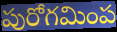
పురోగమింప